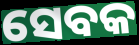
ସେବକ